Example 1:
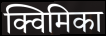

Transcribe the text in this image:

क्विमिका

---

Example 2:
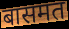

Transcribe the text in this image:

बासमत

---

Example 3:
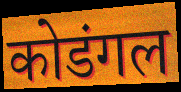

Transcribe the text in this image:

कोडंगल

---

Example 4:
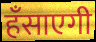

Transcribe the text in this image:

हँसाएगी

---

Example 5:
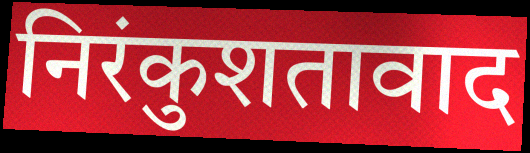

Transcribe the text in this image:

निरंकुशतावाद